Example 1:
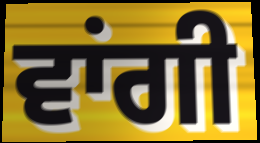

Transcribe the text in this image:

ਵਾਂਗੀ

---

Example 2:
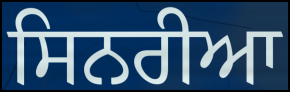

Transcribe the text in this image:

ਸਿਨਰੀਆ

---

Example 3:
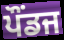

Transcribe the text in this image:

ਪੌਂਡਜ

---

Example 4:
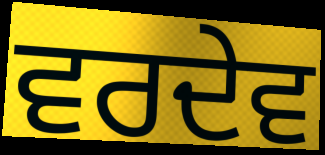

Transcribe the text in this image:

ਵਰਦੇਵ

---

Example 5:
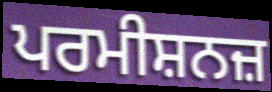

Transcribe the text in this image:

ਪਰਮੀਸ਼ਨਜ਼